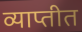
व्याप्तीत